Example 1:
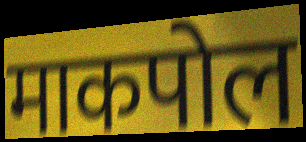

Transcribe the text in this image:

माकपोल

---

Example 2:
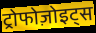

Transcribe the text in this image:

ट्रोफोज़ोइट्स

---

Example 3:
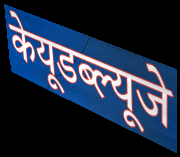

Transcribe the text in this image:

केयूडब्ल्यूजे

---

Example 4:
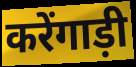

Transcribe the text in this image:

करेंगाड़ी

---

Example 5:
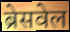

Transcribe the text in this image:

ब्रेसवेल